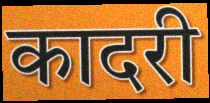
कादरी